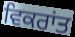
ਵਿਕਰਾਂਤ